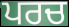
ਪਰਚ